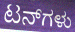
ಟನ್‌ಗಳು